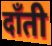
दाँती